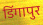
डिंगापुर